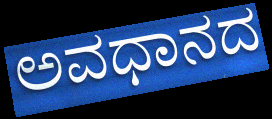
ಅವಧಾನದ